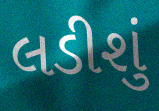
લડીશું